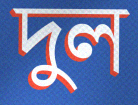
দুল